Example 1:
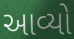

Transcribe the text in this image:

આવ્યો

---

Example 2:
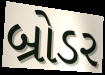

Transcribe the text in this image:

બ્રોડર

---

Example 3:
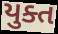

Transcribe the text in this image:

યુક્ત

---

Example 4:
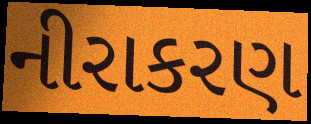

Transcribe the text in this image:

નીરાકરણ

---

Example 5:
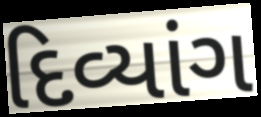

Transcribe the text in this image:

દિવ્યાંગ